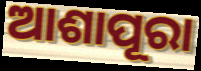
ଆଶାପୂରା